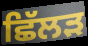
ਛਿੱਲੜ